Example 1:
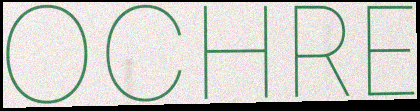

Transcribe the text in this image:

OCHRE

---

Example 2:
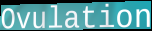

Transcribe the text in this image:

Ovulation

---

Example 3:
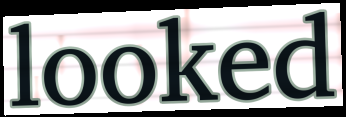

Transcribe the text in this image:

looked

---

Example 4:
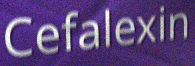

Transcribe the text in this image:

Cefalexin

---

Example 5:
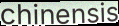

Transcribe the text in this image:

chinensis